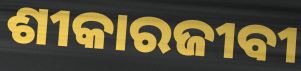
ଶୀକାରଜୀବୀ